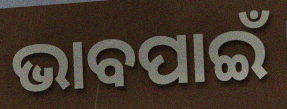
ଭାବପାଇଁ